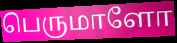
பெருமாளோ